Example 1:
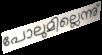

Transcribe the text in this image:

പോലുമില്ലെന്നു്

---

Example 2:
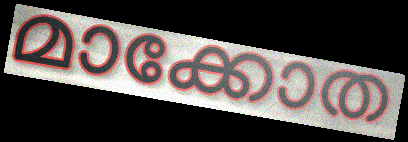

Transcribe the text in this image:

മാക്കോത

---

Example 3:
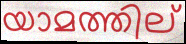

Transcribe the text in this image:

യാമത്തില്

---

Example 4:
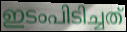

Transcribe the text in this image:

ഇടംപിടിച്ചത്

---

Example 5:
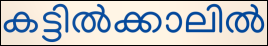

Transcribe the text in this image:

കട്ടിൽക്കാലിൽ